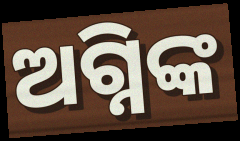
ଅଗ୍ନିଙ୍କ